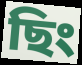
ছিং